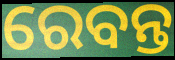
ରେବନ୍ତ